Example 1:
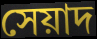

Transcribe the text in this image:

সেয়াদ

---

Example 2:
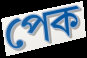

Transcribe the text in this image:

পেক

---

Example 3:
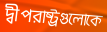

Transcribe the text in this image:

দ্বীপরাষ্ট্রগুলোকে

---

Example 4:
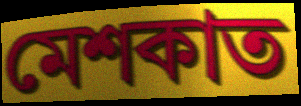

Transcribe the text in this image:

মেশকাত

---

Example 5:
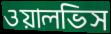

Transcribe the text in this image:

ওয়ালভিস